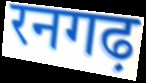
रनगढ़